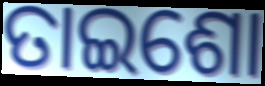
ତାଇଶୋ